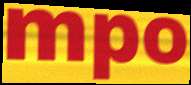
mpo